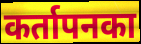
कर्तापनका